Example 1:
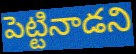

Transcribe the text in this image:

పెట్టినాడని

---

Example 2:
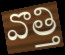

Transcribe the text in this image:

వొత్తి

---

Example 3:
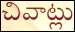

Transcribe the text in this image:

చివాట్లు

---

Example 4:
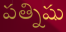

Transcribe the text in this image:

పత్నిషు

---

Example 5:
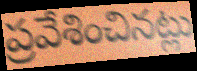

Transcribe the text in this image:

ప్రవేశించినట్లు